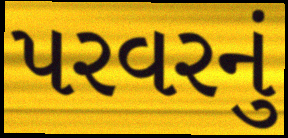
પરવરનું